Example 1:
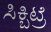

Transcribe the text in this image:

ಸಿಕ್ಬಿಟ್ರೆ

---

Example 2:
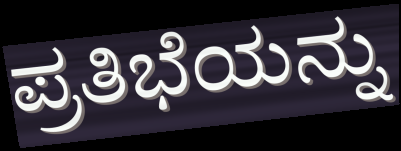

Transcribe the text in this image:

ಪ್ರತಿಭೆಯನ್ನು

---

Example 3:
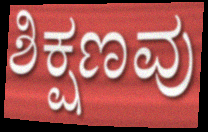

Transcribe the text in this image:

ಶಿಕ್ಷಣವು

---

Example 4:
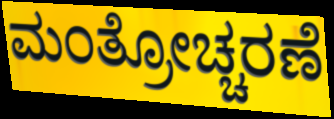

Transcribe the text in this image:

ಮಂತ್ರೋಚ್ಚರಣೆ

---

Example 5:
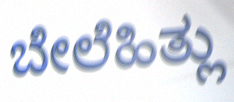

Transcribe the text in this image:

ಬೇಲೆಹಿತ್ಲು